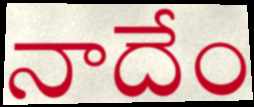
నాదేం